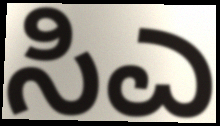
ಸಿಎ